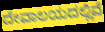
ದೇವಾಲಯದಲ್ಲಿವೆ